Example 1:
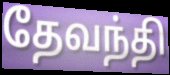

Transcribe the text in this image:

தேவந்தி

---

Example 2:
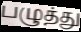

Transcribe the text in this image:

பழுத்து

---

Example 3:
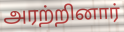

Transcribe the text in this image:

அரற்றினார்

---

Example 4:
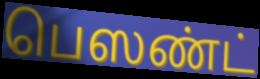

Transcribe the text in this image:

பெஸண்ட்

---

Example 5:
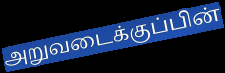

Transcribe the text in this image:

அறுவடைக்குப்பின்